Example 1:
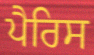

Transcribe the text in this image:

ਪੈਰਿਸ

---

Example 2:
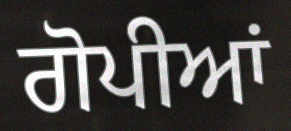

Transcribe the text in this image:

ਗੋਪੀਆਂ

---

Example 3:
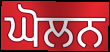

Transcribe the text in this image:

ਘੋਲਨ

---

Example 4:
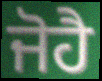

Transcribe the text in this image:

ਜੋਹੈ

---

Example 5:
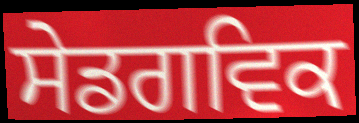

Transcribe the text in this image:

ਸੇਡਗਵਿਕ